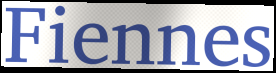
Fiennes